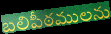
బలిపీఠములను